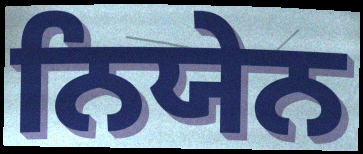
ਨਿਯੇਨ